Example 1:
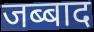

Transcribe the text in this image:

जब्बाद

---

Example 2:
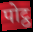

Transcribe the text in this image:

पोट्ठ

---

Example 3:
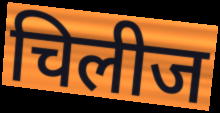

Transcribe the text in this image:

चिलीज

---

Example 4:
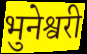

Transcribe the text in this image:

भुनेश्वरी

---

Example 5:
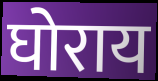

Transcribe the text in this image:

घोराय